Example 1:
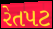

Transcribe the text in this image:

રેતપટ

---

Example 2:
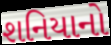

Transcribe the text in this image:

શનિયાનો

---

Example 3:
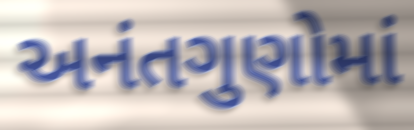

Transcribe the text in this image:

અનંતગુણોમાં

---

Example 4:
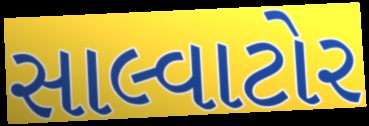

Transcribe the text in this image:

સાલ્વાટોર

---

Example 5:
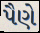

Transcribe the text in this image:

પૈણે